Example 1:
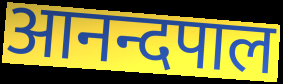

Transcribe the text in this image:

आनन्दपाल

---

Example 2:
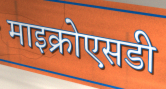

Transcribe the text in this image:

माइक्रोएसडी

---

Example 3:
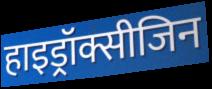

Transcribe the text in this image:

हाइड्रॉक्सीजिन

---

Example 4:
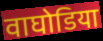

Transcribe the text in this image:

वाघोडिया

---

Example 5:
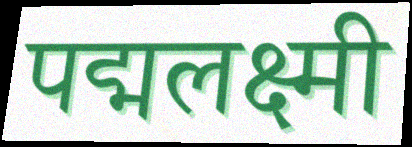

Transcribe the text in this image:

पद्मलक्ष्मी